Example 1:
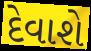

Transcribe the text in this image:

દેવાશે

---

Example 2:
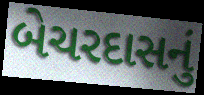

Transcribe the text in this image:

બેચરદાસનું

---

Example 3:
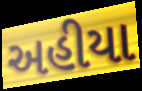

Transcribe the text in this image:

અહીયા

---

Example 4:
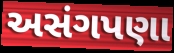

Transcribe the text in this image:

અસંગપણા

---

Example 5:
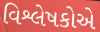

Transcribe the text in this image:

વિશ્લેષકોએ